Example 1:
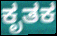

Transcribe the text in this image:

ಕೃತಕ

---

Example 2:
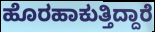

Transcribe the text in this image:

ಹೊರಹಾಕುತ್ತಿದ್ದಾರೆ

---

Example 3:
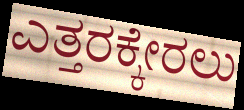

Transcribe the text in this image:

ಎತ್ತರಕ್ಕೇರಲು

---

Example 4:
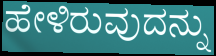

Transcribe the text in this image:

ಹೇಳಿರುವುದನ್ನು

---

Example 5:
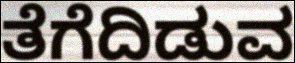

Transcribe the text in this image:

ತೆಗೆದಿಡುವ